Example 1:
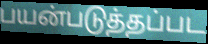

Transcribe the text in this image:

பயன்படுத்தப்பட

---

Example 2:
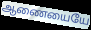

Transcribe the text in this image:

ஆணையையே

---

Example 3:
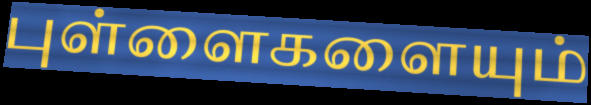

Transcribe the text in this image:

புள்ளைகளையும்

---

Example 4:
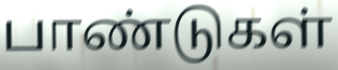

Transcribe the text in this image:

பாண்டுகள்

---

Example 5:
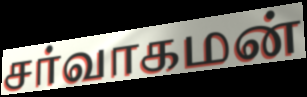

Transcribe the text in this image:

சர்வாகமன்